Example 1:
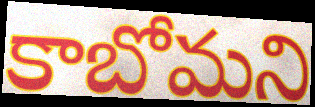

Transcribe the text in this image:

కాబోమని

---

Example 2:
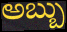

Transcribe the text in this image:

అబ్బు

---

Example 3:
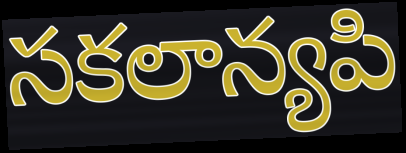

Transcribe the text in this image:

సకలాన్యపి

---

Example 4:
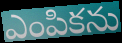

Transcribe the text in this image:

ఎంపికను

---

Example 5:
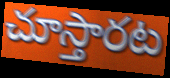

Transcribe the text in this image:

చూస్తారట